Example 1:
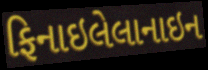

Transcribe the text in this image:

ફિનાઇલેલાનાઇન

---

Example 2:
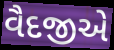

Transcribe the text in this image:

વૈદજીએ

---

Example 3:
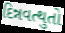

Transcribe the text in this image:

દિન્નવત્થુતો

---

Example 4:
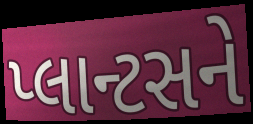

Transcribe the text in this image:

પ્લાન્ટસને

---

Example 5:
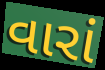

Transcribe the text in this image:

વારાં